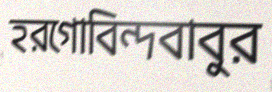
হরগোবিন্দবাবুর